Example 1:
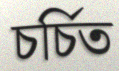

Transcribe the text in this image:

চৰ্চিত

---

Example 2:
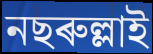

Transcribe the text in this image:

নছৰুল্লাই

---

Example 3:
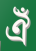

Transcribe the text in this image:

ঐঁ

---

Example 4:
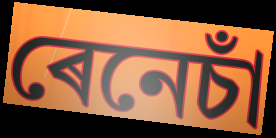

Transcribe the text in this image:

ৰেনেচাঁ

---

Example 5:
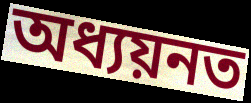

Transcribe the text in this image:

অধ্যয়নত